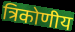
त्रिकोणीय